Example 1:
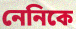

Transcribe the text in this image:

নেনিকে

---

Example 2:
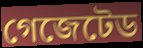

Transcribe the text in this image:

গেজেটেড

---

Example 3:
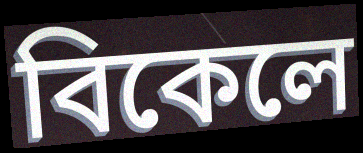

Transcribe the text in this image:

বিকেলে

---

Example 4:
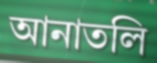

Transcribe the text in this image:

আনাতলি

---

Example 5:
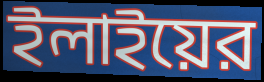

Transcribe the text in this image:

ইলাইয়ের